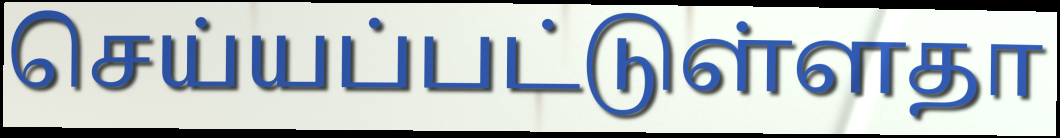
செய்யப்பட்டுள்ளதா